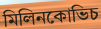
মিলিনকোভিচ